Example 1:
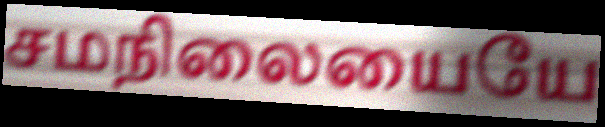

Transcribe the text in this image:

சமநிலையையே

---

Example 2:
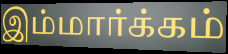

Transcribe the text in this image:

இம்மார்க்கம்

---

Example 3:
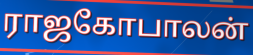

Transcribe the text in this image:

ராஜகோபாலன்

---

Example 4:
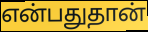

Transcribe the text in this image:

என்பதுதான்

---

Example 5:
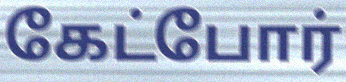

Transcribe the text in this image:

கேட்போர்